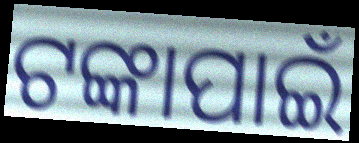
ଟଙ୍କାପାଇଁ